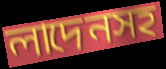
লাদেনসহ